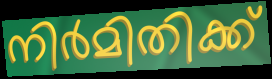
നിർമിതിക്ക്